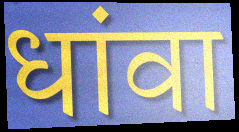
धांवा